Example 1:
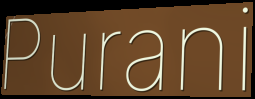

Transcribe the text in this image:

Purani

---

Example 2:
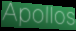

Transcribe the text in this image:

Apollos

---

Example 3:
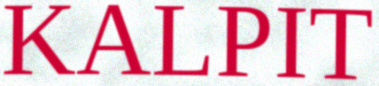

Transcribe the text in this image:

KALPIT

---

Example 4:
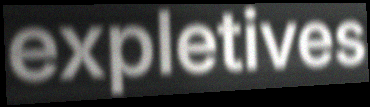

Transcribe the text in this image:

expletives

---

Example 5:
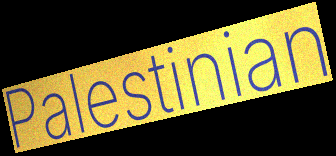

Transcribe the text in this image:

Palestinian